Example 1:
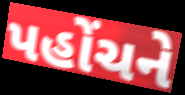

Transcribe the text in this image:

પહોંચને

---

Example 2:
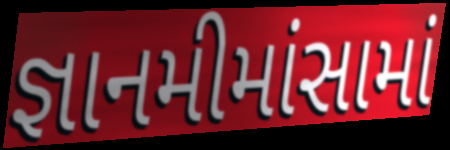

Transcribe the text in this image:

જ્ઞાનમીમાંસામાં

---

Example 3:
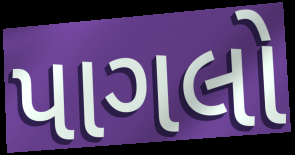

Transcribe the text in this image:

પાગલો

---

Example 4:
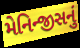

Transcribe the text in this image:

મેનિન્જીસનું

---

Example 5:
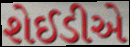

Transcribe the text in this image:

શેઈડીએ